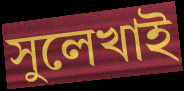
সুলেখাই